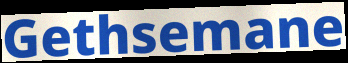
Gethsemane